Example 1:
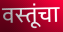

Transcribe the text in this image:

वस्तूंचा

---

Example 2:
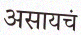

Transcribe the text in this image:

असायचं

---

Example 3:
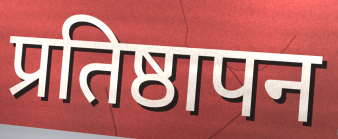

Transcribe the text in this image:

प्रतिष्ठापन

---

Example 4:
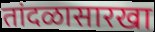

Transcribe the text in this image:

तांदळासारखा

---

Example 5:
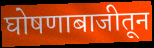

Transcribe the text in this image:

घोषणाबाजीतून